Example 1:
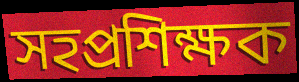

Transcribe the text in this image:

সহপ্রশিক্ষক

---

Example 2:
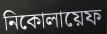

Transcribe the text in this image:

নিকোলায়েফ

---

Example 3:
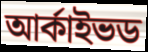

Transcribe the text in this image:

আর্কাইভড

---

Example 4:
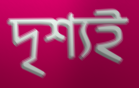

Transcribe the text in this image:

দৃশ্যই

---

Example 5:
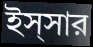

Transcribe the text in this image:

ইস্সার